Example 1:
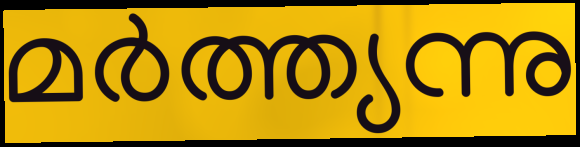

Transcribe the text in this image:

മർത്ത്യന്നു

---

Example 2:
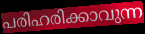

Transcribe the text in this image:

പരിഹരിക്കാവുന്ന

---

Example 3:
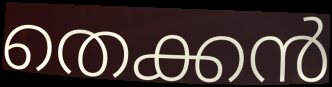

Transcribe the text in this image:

തെക്കൻ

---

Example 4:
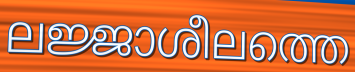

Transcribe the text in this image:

ലജ്ജാശീലത്തെ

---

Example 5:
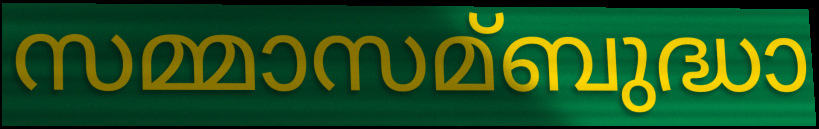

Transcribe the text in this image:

സമ്മാസമ്ബുദ്ധാ